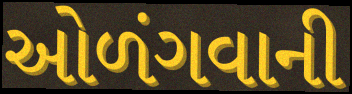
ઓળંગવાની